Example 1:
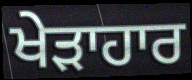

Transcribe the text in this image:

ਖੇੜਾਹਾਰ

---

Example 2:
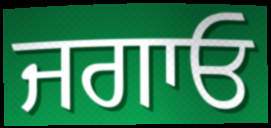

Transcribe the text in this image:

ਜਗਾਓ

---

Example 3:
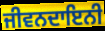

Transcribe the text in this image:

ਜੀਵਨਦਾਇਨੀ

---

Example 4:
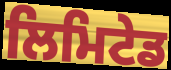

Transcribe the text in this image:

ਲਿਮਿਟੇਡ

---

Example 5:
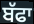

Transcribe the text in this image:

ਬੱਫਾ